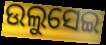
ଉଲୁସେଇ